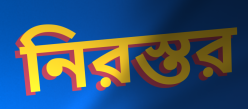
নিরস্তর